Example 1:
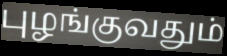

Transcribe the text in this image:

புழங்குவதும்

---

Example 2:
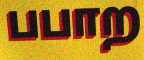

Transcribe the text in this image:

பபாற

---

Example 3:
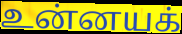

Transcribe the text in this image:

உன்னயக்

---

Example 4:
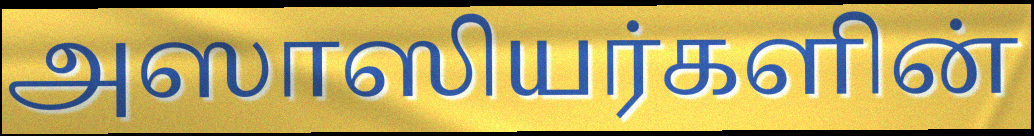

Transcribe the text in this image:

அஸாஸியர்களின்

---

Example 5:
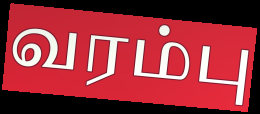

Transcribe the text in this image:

வரம்பு